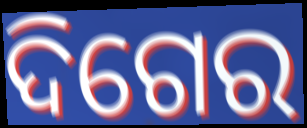
ଦିଗେର